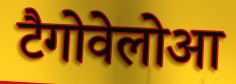
टैगोवेलोआ